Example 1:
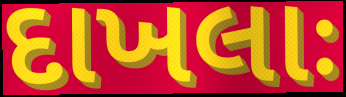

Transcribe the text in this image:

દાખલાઃ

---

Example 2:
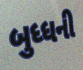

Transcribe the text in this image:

બુધ્ધની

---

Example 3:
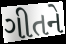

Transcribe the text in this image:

ગીતને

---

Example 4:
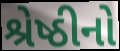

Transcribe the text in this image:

શ્રેષ્ઠીનો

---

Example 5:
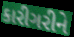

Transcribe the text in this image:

કારીગરીને